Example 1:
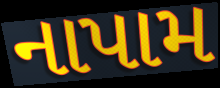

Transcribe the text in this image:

નાપામ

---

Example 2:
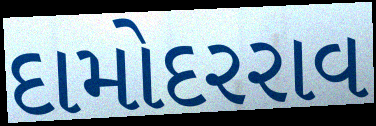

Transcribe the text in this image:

દામોદરરાવ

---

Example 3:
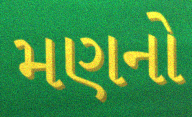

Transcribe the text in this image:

મણનો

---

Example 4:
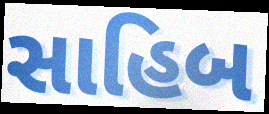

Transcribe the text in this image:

સાહિબ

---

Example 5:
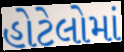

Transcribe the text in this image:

હોટેલોમાં